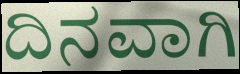
ದಿನವಾಗಿ